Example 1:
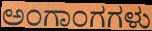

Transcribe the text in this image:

ಅಂಗಾಂಗಗಳು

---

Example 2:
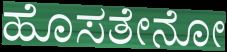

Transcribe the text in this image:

ಹೊಸತೇನೋ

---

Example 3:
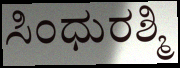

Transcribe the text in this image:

ಸಿಂಧುರಶ್ಮಿ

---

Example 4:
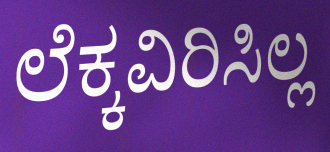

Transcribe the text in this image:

ಲೆಕ್ಕವಿರಿಸಿಲ್ಲ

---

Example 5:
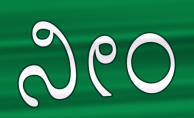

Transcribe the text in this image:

ನೀಂ